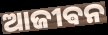
ଆଜୀଵନ